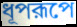
ধূপরূপে